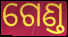
ଗେଣ୍ଡ